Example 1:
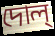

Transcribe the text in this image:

দোল্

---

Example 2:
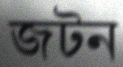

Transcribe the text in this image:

জটন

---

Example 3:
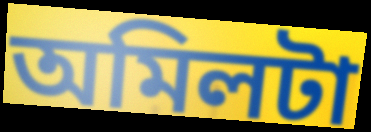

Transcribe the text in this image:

অমিলটা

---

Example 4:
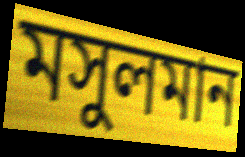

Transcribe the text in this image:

মসুলমান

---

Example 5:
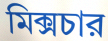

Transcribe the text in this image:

মিক্সচার